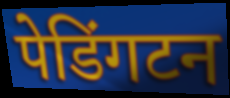
पेडिंगटन